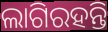
ଲାଗିରହନ୍ତି